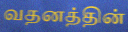
வதனத்தின்